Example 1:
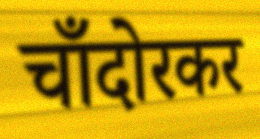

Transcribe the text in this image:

चाँदोरकर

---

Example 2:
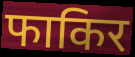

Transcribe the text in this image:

फाकिर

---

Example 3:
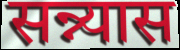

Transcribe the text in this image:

सन्न्यास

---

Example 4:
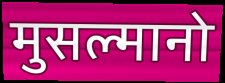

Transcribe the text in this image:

मुसल्मानो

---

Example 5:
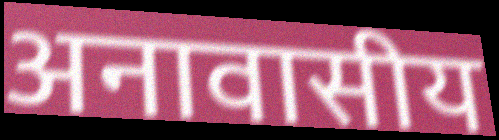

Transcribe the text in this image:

अनावासीय